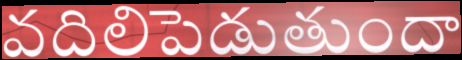
వదిలిపెడుతుందా